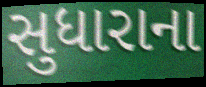
સુધારાના